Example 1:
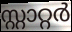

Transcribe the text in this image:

സ്റ്റാറ്റർ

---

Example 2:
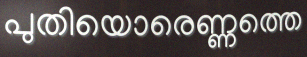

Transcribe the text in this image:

പുതിയൊരെണ്ണത്തെ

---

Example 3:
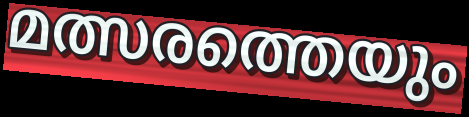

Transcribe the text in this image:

മത്സരത്തെയും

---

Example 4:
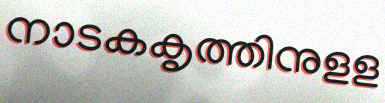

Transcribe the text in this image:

നാടകകൃത്തിനുളള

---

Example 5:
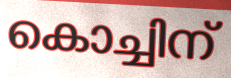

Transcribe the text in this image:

കൊച്ചിന്